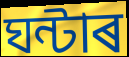
ঘন্টাৰ